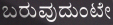
ಬರುವುದುಂಟೇ